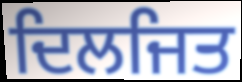
ਦਿਲਜਿਤ